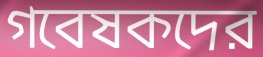
গবেষকদের